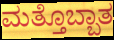
ಮತ್ತೊಬ್ಬಾತ